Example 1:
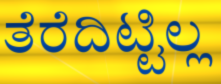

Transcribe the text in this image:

ತೆರೆದಿಟ್ಟಿಲ್ಲ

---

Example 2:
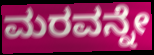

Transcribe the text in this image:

ಮರವನ್ನೇ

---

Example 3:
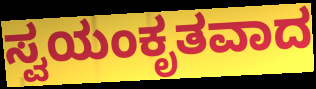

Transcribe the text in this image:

ಸ್ವಯಂಕೃತವಾದ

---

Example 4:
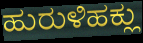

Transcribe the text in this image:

ಹುರುಳಿಹಕ್ಲು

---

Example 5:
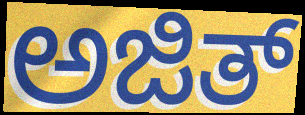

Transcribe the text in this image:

ಅಜಿತ್